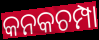
କନକଚମ୍ପା